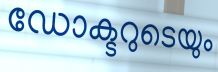
ഡോക്ടറുടെയും